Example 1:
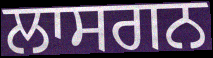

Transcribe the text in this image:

ਲਾਸਗਨ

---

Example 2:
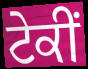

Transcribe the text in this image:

ਟੇਕੀਂ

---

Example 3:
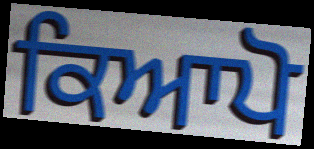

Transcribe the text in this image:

ਕਿਆਪੋ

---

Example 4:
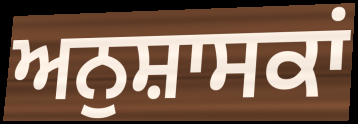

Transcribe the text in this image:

ਅਨੁਸ਼ਾਸਕਾਂ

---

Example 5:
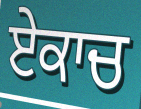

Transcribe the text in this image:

ਏਕਾਚ